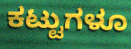
ಕಟ್ಟುಗಳೂ